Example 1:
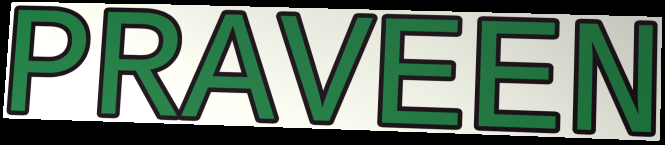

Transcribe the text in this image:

PRAVEEN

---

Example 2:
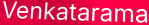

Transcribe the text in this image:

Venkatarama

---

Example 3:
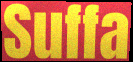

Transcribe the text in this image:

Suffa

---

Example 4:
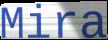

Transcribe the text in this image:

Mira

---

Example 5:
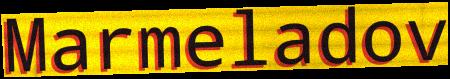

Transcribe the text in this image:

Marmeladov